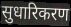
सुधारिकरण